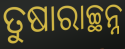
ତୁଷାରାଚ୍ଛନ୍ନ